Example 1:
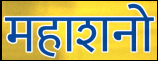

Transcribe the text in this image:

महाशनो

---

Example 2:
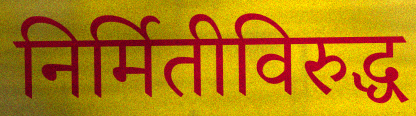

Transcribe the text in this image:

निर्मितीविरुद्ध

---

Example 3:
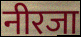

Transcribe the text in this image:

नीरजा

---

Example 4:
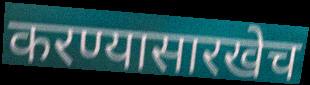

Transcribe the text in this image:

करण्यासारखेच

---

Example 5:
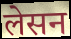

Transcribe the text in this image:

लेसन